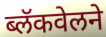
ब्लॅकवेलने